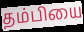
தம்பியை